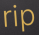
rip